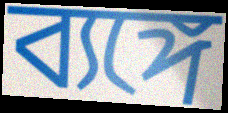
ব্যঙ্গে